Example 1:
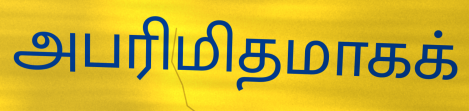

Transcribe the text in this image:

அபரிமிதமாகக்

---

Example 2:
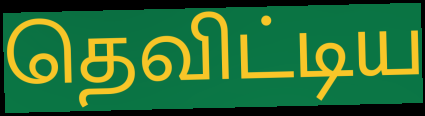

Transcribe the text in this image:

தெவிட்டிய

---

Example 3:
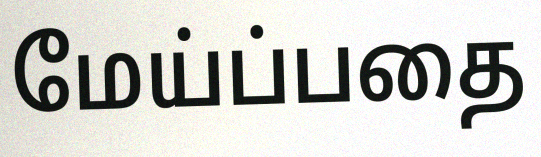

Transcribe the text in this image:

மேய்ப்பதை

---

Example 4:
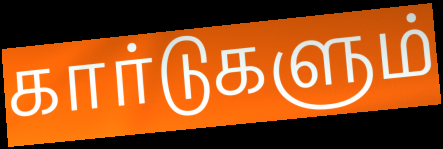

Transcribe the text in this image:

கார்டுகளும்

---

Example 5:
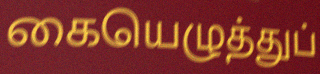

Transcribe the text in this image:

கையெழுத்துப்